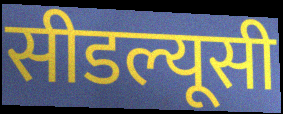
सीडल्यूसी